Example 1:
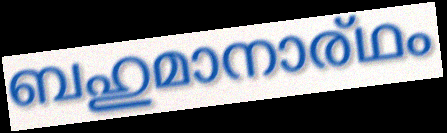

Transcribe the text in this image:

ബഹുമാനാര്ഥം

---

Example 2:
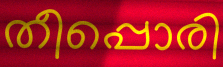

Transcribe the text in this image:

തീപ്പൊരി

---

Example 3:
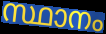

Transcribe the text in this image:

സ്ഥാനം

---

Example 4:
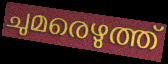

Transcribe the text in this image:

ചുമരെഴുത്ത്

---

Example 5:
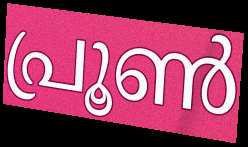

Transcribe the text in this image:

പ്രൂൺ